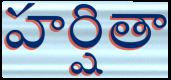
హర్షితా